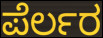
ಪೆರ್ಲರ